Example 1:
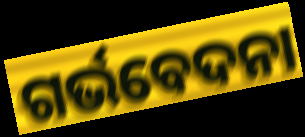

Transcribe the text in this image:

ଗର୍ଭବେଦନା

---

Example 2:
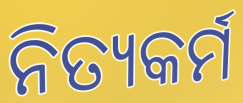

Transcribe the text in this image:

ନିତ୍ଯକର୍ମ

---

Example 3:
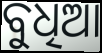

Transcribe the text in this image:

ବୁଧିଆ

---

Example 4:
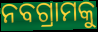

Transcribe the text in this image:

ନବଗ୍ରାମକୁ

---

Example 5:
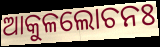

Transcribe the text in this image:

ଆକୁଳଲୋଚନଃ